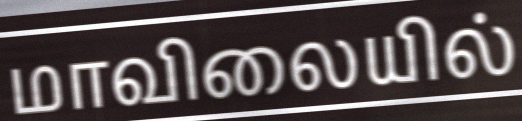
மாவிலையில்